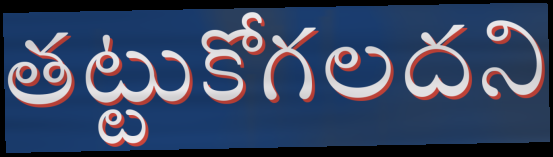
తట్టుకోగలదని